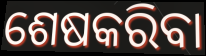
ଶେଷକରିବା